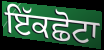
ਇੱਕਛੋਟਾ